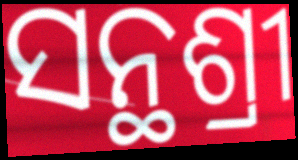
ସନ୍ଥଶ୍ରୀ